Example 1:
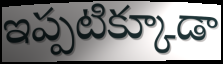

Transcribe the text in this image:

ఇప్పటిక్కూడా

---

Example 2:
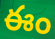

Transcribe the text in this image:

ఈం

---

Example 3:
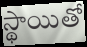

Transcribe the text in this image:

స్థాయితో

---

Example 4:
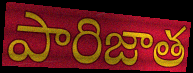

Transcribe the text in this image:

పారిజాత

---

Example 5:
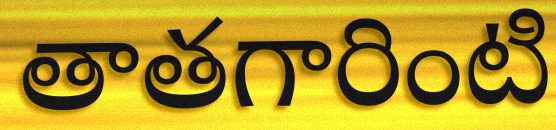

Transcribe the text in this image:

తాతగారింటి